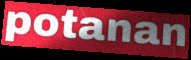
potanan